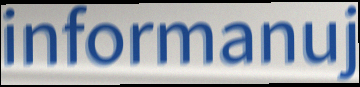
informanuj